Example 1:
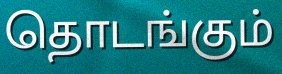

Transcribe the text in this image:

தொடங்கும்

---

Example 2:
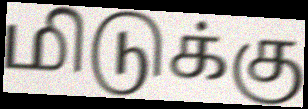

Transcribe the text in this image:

மிடுக்கு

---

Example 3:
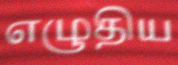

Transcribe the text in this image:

எழுதிய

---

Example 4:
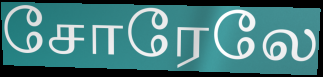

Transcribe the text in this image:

சோரேலே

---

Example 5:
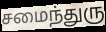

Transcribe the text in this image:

சமைந்துரு